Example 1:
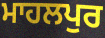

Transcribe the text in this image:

ਮਾਹਲਪੁਰ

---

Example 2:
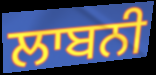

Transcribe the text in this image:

ਲਾਬਨੀ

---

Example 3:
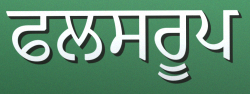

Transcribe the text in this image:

ਫਲਸਰੂਪ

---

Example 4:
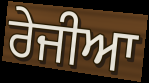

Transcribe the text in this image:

ਰੇਜੀਆ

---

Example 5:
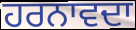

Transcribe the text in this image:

ਹਰਨਾਵਦਾ